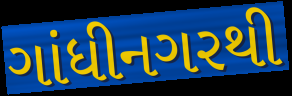
ગાંધીનગરથી